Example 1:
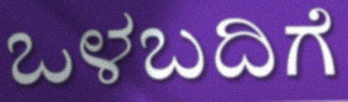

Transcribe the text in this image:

ಒಳಬದಿಗೆ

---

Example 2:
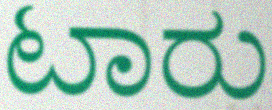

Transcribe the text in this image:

ಟಾರು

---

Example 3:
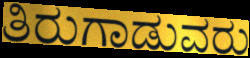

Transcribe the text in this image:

ತಿರುಗಾಡುವರು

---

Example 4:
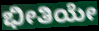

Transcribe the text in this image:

ಭೀತಿಯೇ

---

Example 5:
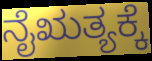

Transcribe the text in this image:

ನೈಋತ್ಯಕ್ಕೆ